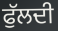
ਫੁੱਲਦੀ